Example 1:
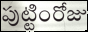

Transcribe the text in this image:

పుట్టింరోజు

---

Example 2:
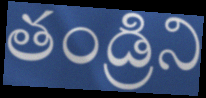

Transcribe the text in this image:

తండ్రిని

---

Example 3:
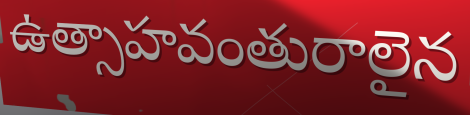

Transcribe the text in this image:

ఉత్సాహవంతురాలైన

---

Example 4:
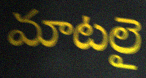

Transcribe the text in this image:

మాటలై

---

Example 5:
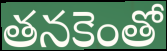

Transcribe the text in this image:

తనకెంతో